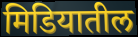
मिडियातील